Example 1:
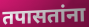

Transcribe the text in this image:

तपासतांना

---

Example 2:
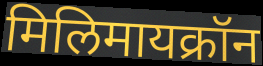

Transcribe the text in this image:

मिलिमायक्रॉन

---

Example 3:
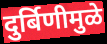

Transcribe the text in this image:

दुर्बिणीमुळे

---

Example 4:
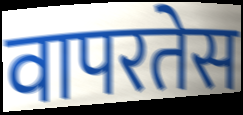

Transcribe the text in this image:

वापरतेस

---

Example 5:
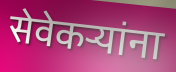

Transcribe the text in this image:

सेवेकऱ्यांना